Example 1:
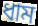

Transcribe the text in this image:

ধাম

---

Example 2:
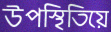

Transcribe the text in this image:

উপস্থিতিয়ে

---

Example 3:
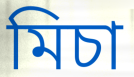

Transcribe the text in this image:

মিচা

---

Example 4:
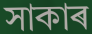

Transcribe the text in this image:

সাকাৰ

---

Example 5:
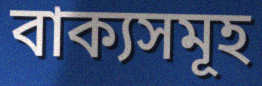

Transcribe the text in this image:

বাক্যসমূহ